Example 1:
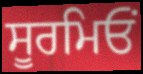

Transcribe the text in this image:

ਸੂਰਮਿਓਂ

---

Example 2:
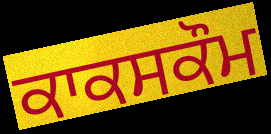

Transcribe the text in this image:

ਕਾਕਸਕੌਮ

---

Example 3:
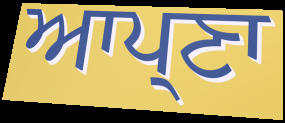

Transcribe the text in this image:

ਆਪ੍ਣਾ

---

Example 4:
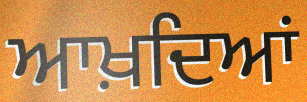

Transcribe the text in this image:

ਆਖ਼ਦਿਆਂ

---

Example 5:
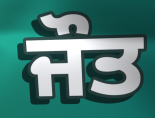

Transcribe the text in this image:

ਜੌਤ